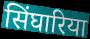
सिंघारिया